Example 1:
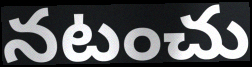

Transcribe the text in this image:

నటంచు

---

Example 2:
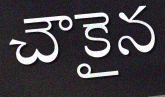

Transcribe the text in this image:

చౌకైన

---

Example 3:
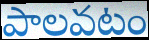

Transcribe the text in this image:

పాలవటం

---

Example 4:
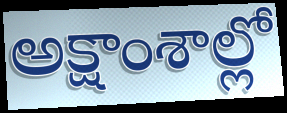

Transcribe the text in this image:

అక్షాంశాల్లో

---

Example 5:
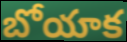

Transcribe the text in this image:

బోయాక